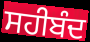
ਸਹੀਬੰਦ